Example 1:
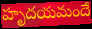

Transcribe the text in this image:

హృదయమందే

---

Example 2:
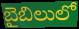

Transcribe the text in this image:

బైబిలులో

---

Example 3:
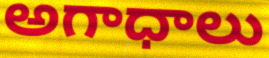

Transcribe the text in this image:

అగాధాలు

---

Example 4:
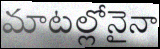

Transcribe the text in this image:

మాటల్లోనైనా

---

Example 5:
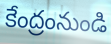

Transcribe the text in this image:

కేంద్రంనుండి